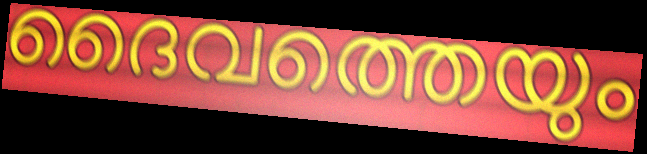
ദൈവത്തെയും